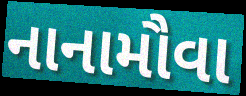
નાનામૌવા